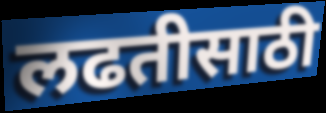
लढतीसाठी